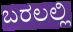
ಬರಲಲ್ಲಿ